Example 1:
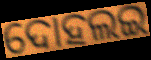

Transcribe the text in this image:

ଦୋହଲଇ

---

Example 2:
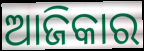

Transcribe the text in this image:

ଆଜିକାର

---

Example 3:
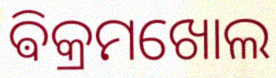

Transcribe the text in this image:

ଵିକ୍ରମଖୋଲ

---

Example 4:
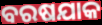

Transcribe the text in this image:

ବରଷଯାକ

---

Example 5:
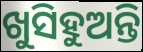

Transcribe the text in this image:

ଖୁସିହୁଅନ୍ତି